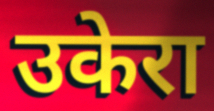
उकेरा